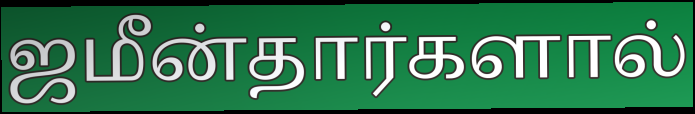
ஜமீன்தார்களால்